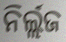
ନିର୍ଲ୍ଲଜ